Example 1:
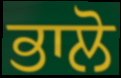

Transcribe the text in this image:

ਭਾਲੋ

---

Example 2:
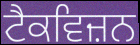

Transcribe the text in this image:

ਟੈਕਵਿਜ਼ਨ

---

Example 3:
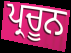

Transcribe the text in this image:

ਪ੍ਰਚੂਨ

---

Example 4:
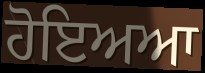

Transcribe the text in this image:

ਹੋਇਅਆ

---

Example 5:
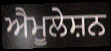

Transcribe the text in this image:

ਐਮੂਲੇਸ਼ਨ